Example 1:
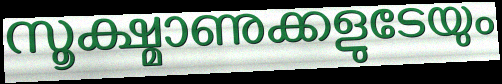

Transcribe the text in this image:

സൂക്ഷ്മാണുക്കളുടേയും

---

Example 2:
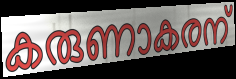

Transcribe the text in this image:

കരുണാകരന്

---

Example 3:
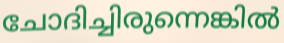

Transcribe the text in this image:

ചോദിച്ചിരുന്നെങ്കിൽ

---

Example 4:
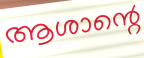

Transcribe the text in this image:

ആശാന്റെ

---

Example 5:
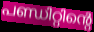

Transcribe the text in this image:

പണ്ഡിറ്റിന്റെ